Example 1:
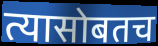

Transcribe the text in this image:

त्यासोबतच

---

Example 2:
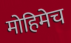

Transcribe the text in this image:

मोहिमेच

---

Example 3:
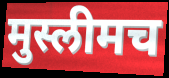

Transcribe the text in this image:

मुस्लीमच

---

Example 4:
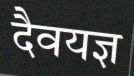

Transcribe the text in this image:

दैवयज्ञ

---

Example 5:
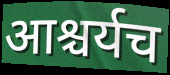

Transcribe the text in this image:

आश्चर्यच